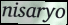
nisaryo